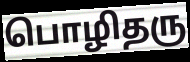
பொழிதரு